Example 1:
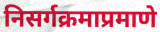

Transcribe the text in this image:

निसर्गक्रमाप्रमाणे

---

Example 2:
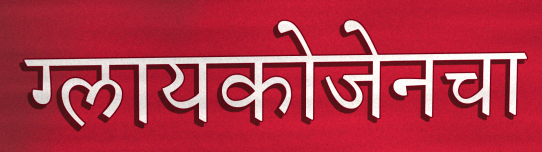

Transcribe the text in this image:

ग्लायकोजेनचा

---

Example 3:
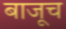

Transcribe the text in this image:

बाजूच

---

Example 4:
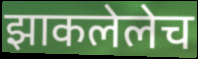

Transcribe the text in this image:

झाकलेलेच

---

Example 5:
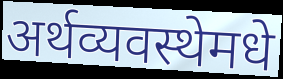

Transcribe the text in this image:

अर्थव्यवस्थेमधे